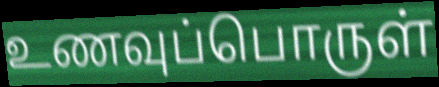
உணவுப்பொருள்